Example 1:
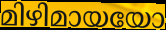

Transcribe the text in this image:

മിഴിമായയോ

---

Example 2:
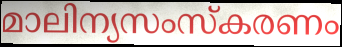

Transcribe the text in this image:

മാലിന്യസംസ്കരണം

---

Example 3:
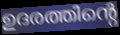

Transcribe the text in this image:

ഉദരത്തിന്റെ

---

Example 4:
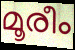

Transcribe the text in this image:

മൂരീം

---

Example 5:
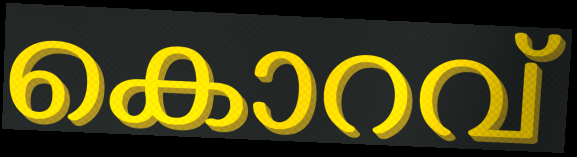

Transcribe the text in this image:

കൊറവ്